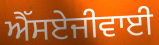
ਐੱਸਏਜੀਵਾਈ